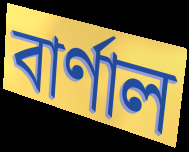
বাৰ্ণাল